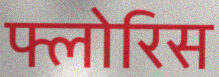
फ्लोरिस